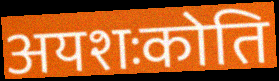
अयशःकोति